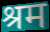
श्रम